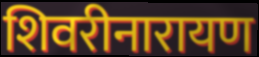
शिवरीनारायण